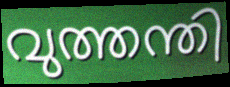
വുത്തന്തി